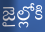
జైల్లోకి